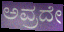
ಅವ್ರದೇ